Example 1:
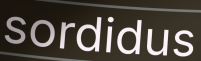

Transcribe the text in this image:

sordidus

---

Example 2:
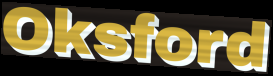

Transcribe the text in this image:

Oksford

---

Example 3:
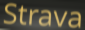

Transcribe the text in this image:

Strava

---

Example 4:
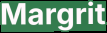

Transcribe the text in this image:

Margrit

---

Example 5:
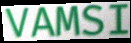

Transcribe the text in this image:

VAMSI